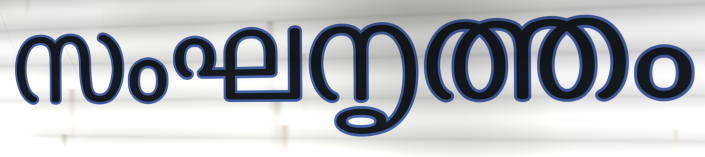
സംഘനൃത്തം